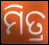
ମିତ୍ର